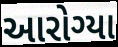
આરોગ્યા